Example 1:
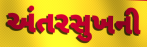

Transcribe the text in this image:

અંતરસુખની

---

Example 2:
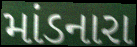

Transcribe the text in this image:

માંડનારા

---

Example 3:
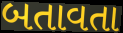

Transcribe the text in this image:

બતાવતા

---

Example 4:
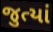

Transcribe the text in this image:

જુત્યાં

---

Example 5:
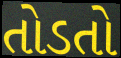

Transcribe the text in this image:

તોડતો